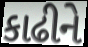
કાઢીને